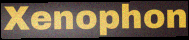
Xenophon